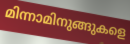
മിന്നാമിനുങ്ങുകളെ